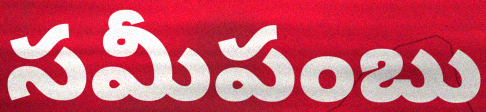
సమీపంబు